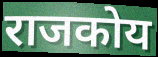
राजकोय